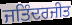
ਜਤਿੰਦਰਜੀਤ